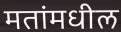
मतांमधील